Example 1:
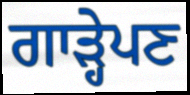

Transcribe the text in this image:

ਗਾੜ੍ਹੇਪਣ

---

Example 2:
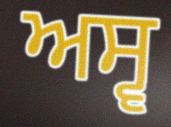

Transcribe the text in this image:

ਅਸ੍ਵ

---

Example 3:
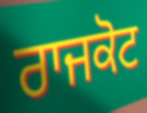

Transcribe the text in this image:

ਰਾਜਕੋਟ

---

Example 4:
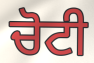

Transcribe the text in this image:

ਚੋਟੀ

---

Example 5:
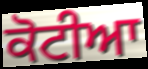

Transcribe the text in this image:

ਕੋਟੀਆ